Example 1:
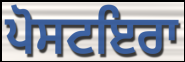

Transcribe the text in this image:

ਪੋਸਟਇਰਾ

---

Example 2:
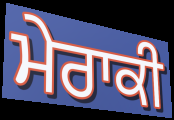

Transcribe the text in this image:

ਮੇਰਾਕੀ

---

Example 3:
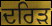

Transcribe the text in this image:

ਦਰਿੜ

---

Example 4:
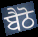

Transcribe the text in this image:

ਬੈਠੋ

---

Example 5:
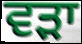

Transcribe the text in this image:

ਵੜਾ